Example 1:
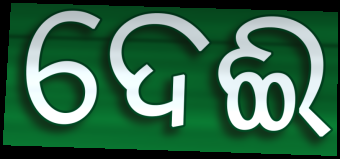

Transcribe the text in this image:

ଦେଈ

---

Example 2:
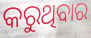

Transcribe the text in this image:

କରୁଥିବାର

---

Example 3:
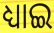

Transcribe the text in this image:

ଧ୍ୟାଇ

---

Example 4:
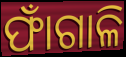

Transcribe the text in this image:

ଫାଁଗାଳି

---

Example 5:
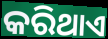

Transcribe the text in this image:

କରିଥାଏ